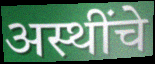
अस्थींचे